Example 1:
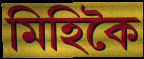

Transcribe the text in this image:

মিহিকৈ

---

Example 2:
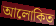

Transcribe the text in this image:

আলোকিত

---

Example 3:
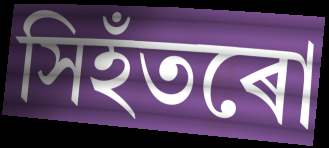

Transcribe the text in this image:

সিহঁতৰো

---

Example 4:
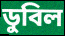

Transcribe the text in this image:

ডুবিল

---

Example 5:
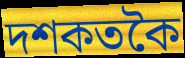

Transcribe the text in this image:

দশকতকৈ